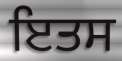
ਇਤਸ